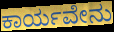
ಕಾರ್ಯವೇನು